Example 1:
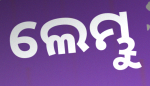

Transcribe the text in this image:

ଲେମ୍ଭୁ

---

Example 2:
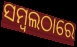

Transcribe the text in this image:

ସମ୍ବଲଠାରେ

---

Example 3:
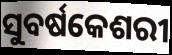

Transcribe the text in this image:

ସୁବର୍ଷକେଶରୀ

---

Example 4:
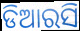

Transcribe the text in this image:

ଡିଆରସି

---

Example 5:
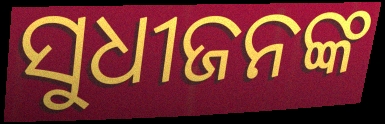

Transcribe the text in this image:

ସୁଧୀଜନଙ୍କ